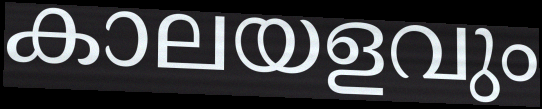
കാലയളവും